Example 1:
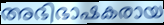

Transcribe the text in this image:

അഭിഭാഷകരായ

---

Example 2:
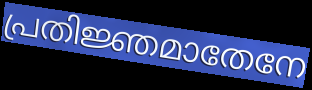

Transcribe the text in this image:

പ്രതിജ്ഞമാതേനേ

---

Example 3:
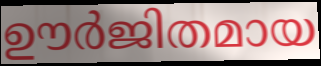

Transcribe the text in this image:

ഊർജിതമായ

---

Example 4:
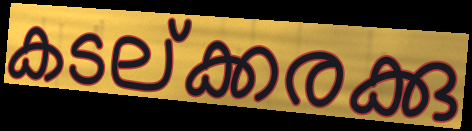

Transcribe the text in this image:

കടല്ക്കരക്കു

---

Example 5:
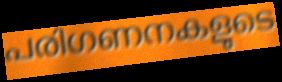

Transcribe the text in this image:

പരിഗണനകളുടെ